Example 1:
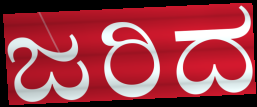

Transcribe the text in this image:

ಜರಿದ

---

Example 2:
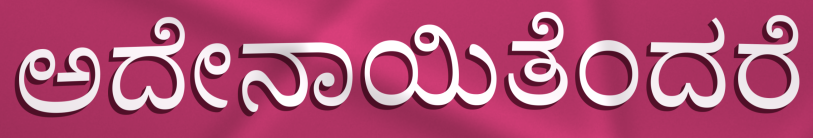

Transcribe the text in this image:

ಅದೇನಾಯಿತೆಂದರೆ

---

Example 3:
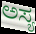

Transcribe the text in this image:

ಅಸ್ಯ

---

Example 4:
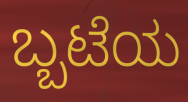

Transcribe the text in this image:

ಬ್ಬಟೆಯ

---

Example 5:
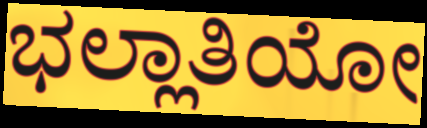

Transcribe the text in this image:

ಭಲ್ಲಾತಿಯೋ